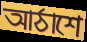
আঠাশে